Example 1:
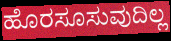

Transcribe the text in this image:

ಹೊರಸೂಸುವುದಿಲ್ಲ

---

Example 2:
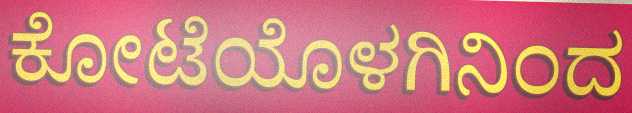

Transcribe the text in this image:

ಕೋಟೆಯೊಳಗಿನಿಂದ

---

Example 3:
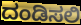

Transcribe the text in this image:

ದಂಡಿಸಲಿ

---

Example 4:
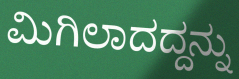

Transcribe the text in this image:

ಮಿಗಿಲಾದದ್ದನ್ನು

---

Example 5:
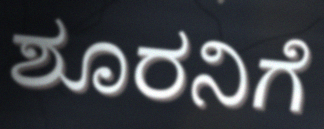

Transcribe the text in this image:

ಶೂರನಿಗೆ